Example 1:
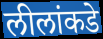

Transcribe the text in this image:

लीलांकडे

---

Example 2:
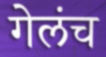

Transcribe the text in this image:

गेलंच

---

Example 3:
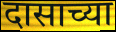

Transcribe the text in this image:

दासाच्या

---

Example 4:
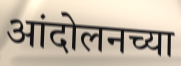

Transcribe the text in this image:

आंदोलनच्या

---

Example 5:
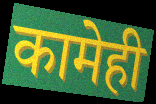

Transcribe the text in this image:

कामेही